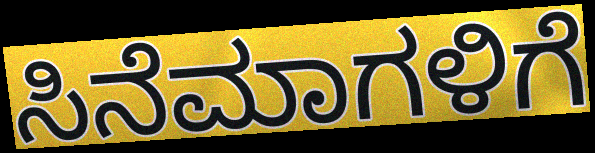
ಸಿನೆಮಾಗಳಿಗೆ